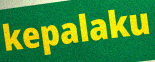
kepalaku